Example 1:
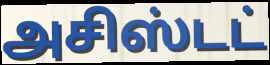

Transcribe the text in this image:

அசிஸ்டட்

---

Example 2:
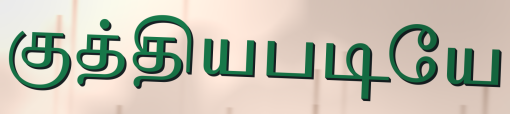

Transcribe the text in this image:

குத்தியபடியே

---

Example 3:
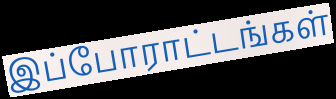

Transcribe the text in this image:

இப்போராட்டங்கள்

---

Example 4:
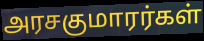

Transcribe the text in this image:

அரசகுமாரர்கள்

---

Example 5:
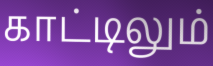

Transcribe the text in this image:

காட்டிலும்